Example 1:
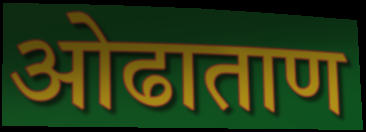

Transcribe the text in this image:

ओढाताण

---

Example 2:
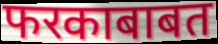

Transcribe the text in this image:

फरकाबाबत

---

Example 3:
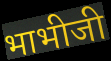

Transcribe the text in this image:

भाभीजी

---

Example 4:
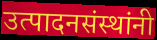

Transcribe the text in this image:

उत्पादनसंस्थांनी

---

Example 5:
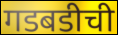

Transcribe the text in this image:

गडबडीची